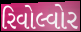
રિવોલ્વોર